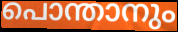
പൊന്താനും